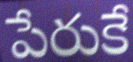
పేరుకే